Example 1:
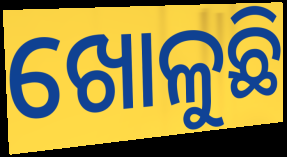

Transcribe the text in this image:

ଖୋଳୁଛି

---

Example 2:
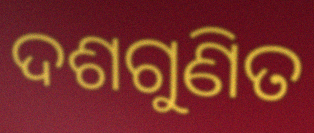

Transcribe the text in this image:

ଦଶଗୁଣିତ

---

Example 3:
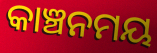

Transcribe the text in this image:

କାଞ୍ଚନମୟ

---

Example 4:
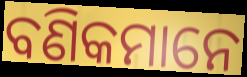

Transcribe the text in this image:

ବଣିକମାନେ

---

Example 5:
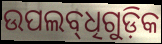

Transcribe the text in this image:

ଉପଲବ୍‌ଧିଗୁଡ଼ିକ